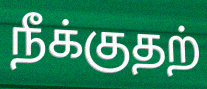
நீக்குதற்